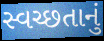
સ્વચ્છતાનું